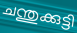
ചന്തുക്കുട്ടി